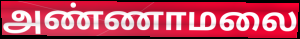
அண்ணாமலை